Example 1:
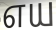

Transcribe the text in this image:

எய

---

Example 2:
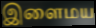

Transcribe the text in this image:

இளைமய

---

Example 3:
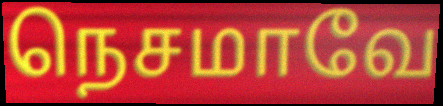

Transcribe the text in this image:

நெசமாவே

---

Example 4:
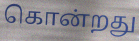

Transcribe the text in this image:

கொன்றது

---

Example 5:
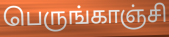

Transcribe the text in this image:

பெருங்காஞ்சி